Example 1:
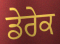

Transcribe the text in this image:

ਡੇਰੇਕ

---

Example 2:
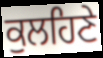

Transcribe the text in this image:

ਕੁਲਹਿਣੇ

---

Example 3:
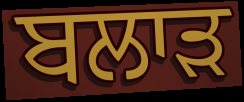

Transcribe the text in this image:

ਬਲਾੜ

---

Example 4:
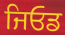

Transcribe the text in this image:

ਜਿਓਡ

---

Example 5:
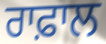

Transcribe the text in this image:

ਰਾਫ਼ਾਲ